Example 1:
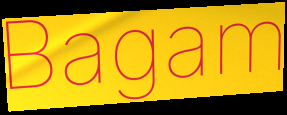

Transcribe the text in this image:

Bagam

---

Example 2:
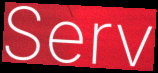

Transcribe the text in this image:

Serv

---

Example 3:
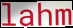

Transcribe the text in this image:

lahm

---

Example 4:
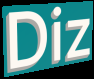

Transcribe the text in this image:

Diz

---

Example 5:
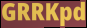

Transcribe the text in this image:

GRRKpd